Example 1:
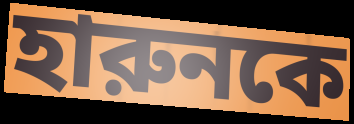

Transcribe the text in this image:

হারুনকে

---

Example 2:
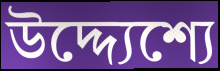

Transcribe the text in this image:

উদ্দ্যেশ্যে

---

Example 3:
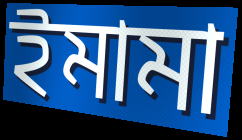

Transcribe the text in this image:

ইমামা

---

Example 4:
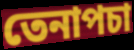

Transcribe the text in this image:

তেনাপচা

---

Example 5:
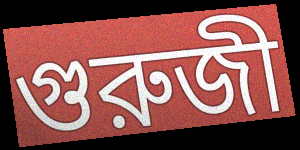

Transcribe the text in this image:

গুরুজী